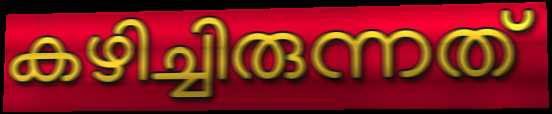
കഴിച്ചിരുന്നത്